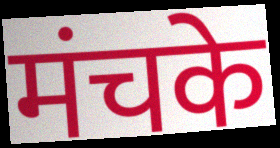
मंचके